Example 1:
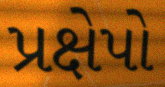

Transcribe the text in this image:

પ્રક્ષેપો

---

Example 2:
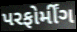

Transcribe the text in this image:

પરફોર્મીંગ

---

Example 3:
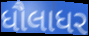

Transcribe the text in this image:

ધૌલાધર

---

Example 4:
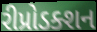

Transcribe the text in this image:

રીપ્રોડક્શન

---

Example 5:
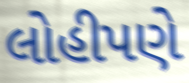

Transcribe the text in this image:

લોહીપણે